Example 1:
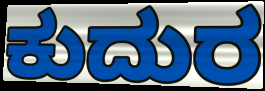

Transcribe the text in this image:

ಕುದುರ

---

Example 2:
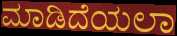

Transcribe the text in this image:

ಮಾಡಿದೆಯಲಾ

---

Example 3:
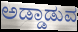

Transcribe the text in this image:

ಅಡ್ಡಾಡುವ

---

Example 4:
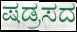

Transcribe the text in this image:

ಷಡ್ರಸದ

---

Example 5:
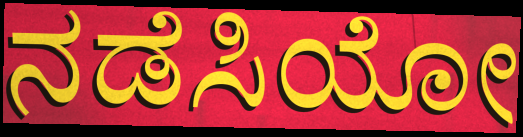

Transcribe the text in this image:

ನಡೆಸಿಯೋ